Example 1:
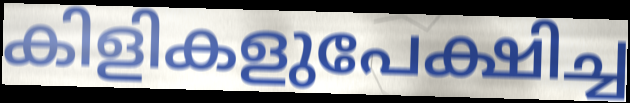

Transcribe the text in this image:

കിളികളുപേക്ഷിച്ച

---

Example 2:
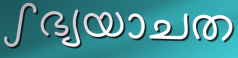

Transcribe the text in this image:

ഽഭ്യയാചത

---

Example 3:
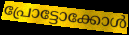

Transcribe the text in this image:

പ്രോട്ടോക്കോൾ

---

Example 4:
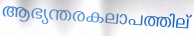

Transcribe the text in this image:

ആഭ്യന്തരകലാപത്തില്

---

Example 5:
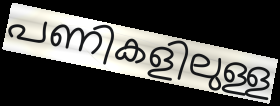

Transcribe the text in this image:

പണികളിലുള്ള